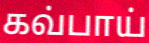
கவ்பாய்